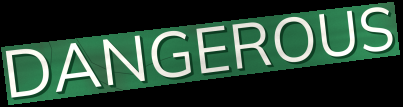
DANGEROUS